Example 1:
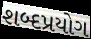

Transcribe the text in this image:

શબ્દપ્રયોગ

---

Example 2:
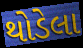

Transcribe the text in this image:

થોડેલા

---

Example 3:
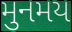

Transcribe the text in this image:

મુનમય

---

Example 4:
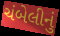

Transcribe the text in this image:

ચંબેલીનું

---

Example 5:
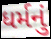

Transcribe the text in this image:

ધર્મનું